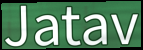
Jatav